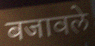
बजावले